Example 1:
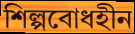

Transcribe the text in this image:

শিল্পবোধহীন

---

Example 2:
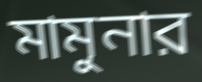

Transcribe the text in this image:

মামুনার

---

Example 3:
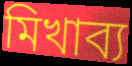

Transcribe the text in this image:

মিখাব্য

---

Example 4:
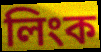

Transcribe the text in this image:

লিংক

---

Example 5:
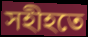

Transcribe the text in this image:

সহীহতে